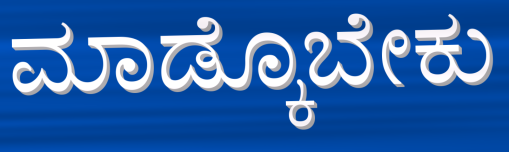
ಮಾಡ್ಕೊಬೇಕು